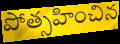
పోత్సహించిన